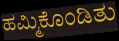
ಹಮ್ಮಿಕೊಂಡಿತು